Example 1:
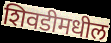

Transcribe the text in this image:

शिवडीमधील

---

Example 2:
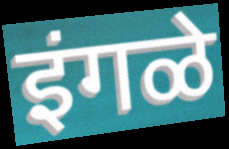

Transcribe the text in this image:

इंगळे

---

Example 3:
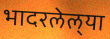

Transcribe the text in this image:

भादरलेल्या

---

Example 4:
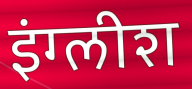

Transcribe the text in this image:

इंग्लीश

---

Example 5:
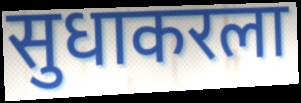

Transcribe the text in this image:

सुधाकरला